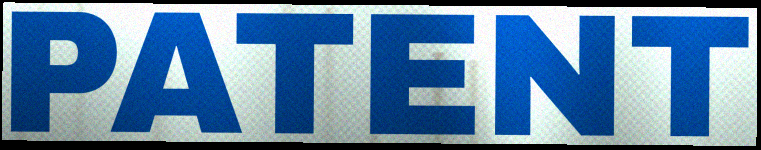
PATENT